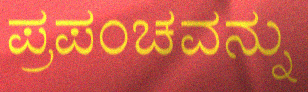
ಪ್ರಪಂಚವನ್ನು